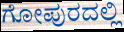
ಗೋಪುರದಲ್ಲಿ